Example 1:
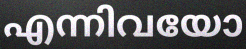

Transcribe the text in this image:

എന്നിവയോ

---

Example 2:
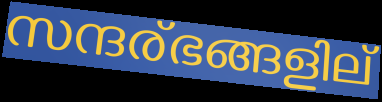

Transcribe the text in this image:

സന്ദര്ഭങ്ങളില്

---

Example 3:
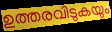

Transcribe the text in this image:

ഉത്തരവിടുകയും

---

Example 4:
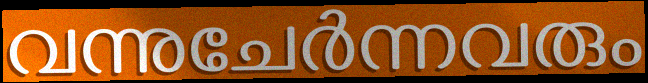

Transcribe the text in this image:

വന്നുചേർന്നവരും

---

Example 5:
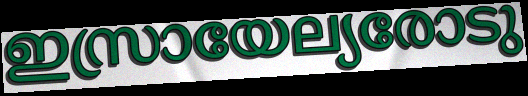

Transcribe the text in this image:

ഇസ്രായേല്യരോടു